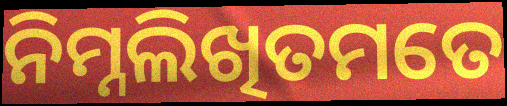
ନିମ୍ନଲିଖିତମତେ